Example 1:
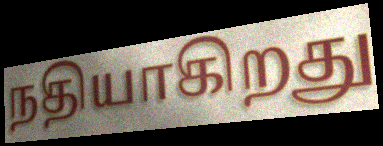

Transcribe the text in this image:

நதியாகிறது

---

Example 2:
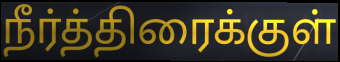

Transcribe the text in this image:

நீர்த்திரைக்குள்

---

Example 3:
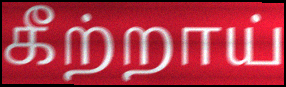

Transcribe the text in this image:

கீற்றாய்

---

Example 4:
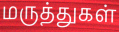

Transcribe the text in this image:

மருத்துகள்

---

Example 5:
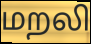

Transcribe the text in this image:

மறலி